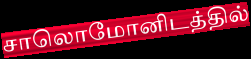
சாலொமோனிடத்தில்